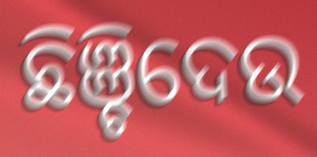
ଛିଞ୍ଚିଦେଉ